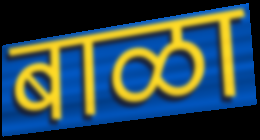
बाळा